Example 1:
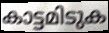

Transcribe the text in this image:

കാട്ടമിടുക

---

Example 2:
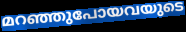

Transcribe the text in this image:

മറഞ്ഞുപോയവയുടെ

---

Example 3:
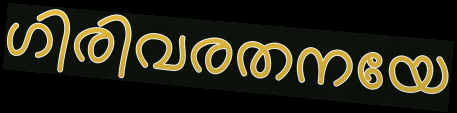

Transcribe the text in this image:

ഗിരിവരതനയേ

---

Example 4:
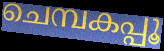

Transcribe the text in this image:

ചെമ്പകപ്പൂ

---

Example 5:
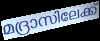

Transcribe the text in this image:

മദ്രാസിലേക്ക്